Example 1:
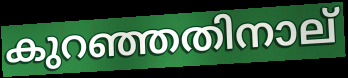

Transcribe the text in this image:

കുറഞ്ഞതിനാല്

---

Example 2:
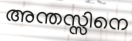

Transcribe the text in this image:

അന്തസ്സിനെ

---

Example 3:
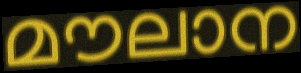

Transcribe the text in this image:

മൗലാന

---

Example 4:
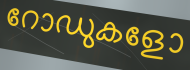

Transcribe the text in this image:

റോഡുകളോ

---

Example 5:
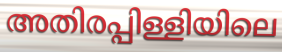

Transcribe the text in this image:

അതിരപ്പിള്ളിയിലെ